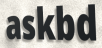
askbd